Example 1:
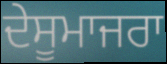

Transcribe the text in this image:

ਦੇਸੂਮਾਜਰਾ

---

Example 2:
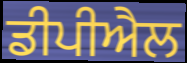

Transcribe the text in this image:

ਡੀਪੀਐਲ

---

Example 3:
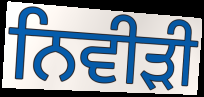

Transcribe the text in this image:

ਨਿਵੀੜੀ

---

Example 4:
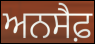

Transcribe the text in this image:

ਅਨਸੈਫ਼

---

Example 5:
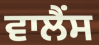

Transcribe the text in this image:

ਵਾਲੈਂਸ